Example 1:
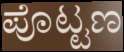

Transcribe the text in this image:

ಪೊಟ್ಟಣ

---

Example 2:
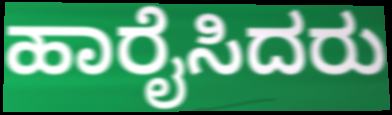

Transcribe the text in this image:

ಹಾರೈಸಿದರು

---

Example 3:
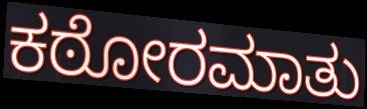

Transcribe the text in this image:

ಕಠೋರಮಾತು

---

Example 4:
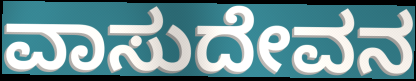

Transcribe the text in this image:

ವಾಸುದೇವನ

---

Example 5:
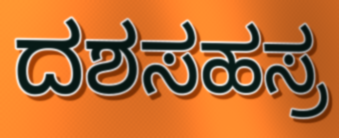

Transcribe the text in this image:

ದಶಸಹಸ್ರ